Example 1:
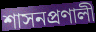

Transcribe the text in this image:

শাসনপ্রণালী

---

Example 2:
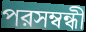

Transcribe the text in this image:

পরসম্বন্ধী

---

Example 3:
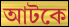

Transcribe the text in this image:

আটকে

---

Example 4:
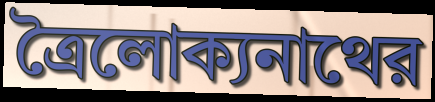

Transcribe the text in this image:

ত্রৈলোক্যনাথের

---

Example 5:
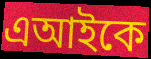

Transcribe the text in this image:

এআইকে